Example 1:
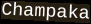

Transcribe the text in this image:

Champaka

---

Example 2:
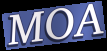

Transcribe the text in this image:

MOA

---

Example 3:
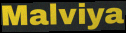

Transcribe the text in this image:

Malviya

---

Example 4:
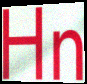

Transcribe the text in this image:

Hn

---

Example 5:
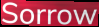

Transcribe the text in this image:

Sorrow